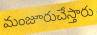
మంజూరుచేస్తారు